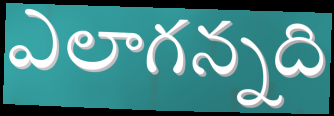
ఎలాగన్నది